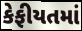
કેફીયતમાં